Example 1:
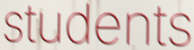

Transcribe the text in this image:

students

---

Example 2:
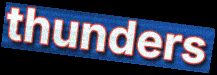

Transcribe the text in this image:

thunders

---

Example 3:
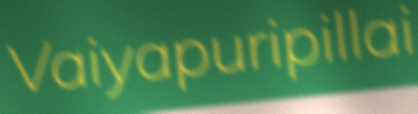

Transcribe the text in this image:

Vaiyapuripillai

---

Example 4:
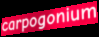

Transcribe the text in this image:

carpogonium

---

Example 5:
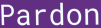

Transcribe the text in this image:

Pardon